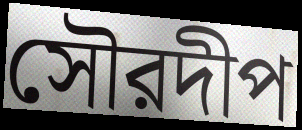
সৌরদীপ